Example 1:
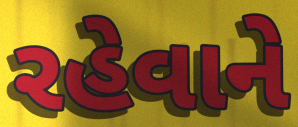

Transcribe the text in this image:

રહેવાને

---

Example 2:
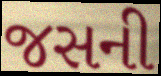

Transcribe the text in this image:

જસની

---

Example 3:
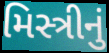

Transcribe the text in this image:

મિસ્ત્રીનું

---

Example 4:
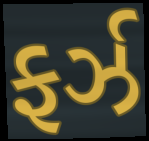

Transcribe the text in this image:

ફર્ઝ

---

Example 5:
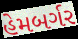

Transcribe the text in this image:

હેમબર્ગર